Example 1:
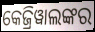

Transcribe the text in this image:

କେଜ୍ରିୱାଲଙ୍କର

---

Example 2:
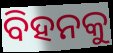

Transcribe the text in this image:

ବିହନକୁ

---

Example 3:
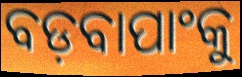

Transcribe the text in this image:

ବଡ଼ବାପାଂକୁ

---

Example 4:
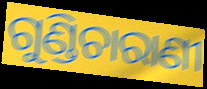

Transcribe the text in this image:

ଗୁଣ୍ଡିଚାରାଣୀ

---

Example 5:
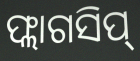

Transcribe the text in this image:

ଫ୍ଲାଗସିପ୍